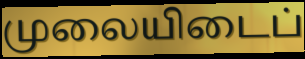
முலையிடைப்